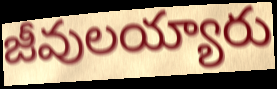
జీవులయ్యారు